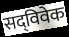
सद्‌विवेक